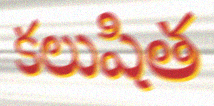
కలుషిత